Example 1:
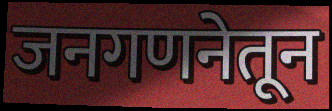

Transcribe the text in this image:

जनगणनेतून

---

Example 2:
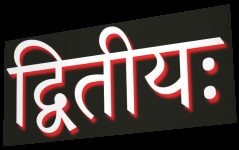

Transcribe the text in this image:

द्वितीयः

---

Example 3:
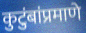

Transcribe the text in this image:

कुटुंबांप्रमाणे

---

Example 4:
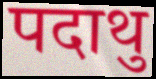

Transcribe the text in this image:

पदाथु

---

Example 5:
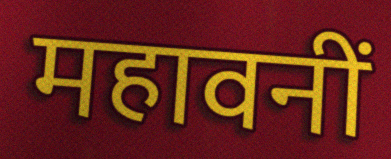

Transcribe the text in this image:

महावनीं